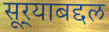
सूर्याबद्दल